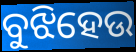
ବୁଝିହେଉ